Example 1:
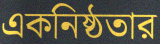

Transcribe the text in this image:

একনিষ্ঠতার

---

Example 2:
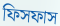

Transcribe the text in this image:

ফিসফাস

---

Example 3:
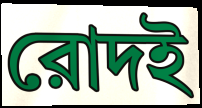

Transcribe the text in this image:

রোদই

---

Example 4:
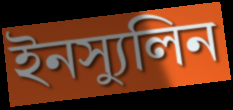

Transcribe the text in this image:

ইনস্যুলিন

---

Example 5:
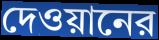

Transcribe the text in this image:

দেওয়ানের